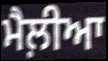
ਮੈਲ਼ੀਆ